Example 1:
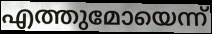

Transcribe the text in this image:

എത്തുമോയെന്ന്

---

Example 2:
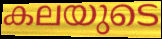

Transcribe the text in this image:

കലയുടെ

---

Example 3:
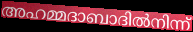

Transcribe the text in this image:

അഹമ്മദാബാദിൽനിന്ന്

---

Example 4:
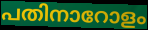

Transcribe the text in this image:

പതിനാറോളം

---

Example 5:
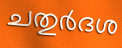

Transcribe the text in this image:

ചതുർദശ